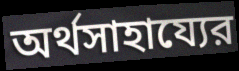
অর্থসাহায্যের